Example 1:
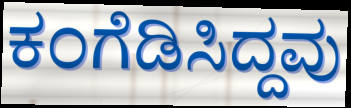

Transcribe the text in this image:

ಕಂಗೆಡಿಸಿದ್ದವು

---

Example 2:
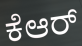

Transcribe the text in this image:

ಕೆಆರ್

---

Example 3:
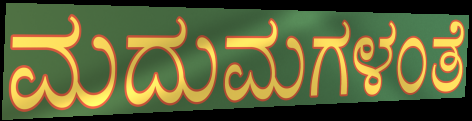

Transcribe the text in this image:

ಮದುಮಗಳಂತೆ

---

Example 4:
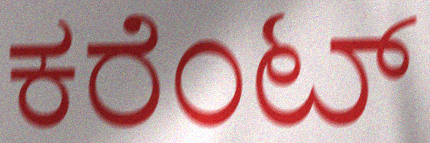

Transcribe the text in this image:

ಕರೆಂಟ್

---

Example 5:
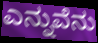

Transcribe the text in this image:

ಎನ್ನುವೆನು